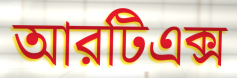
আরটিএক্স